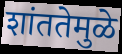
शांततेमुळे